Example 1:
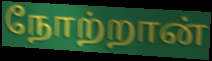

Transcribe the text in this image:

நோற்றான்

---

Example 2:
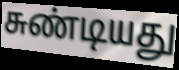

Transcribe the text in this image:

சுண்டியது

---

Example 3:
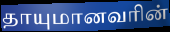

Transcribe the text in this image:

தாயுமானவரின்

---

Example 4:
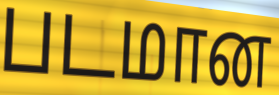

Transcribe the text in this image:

படமான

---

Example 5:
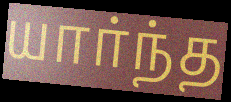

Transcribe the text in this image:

யார்ந்த